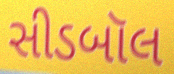
સીડબૉલ